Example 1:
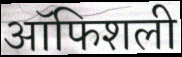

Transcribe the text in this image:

ऑफिशली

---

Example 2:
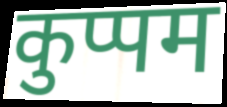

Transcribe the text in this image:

कुप्पम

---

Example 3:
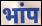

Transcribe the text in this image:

भांप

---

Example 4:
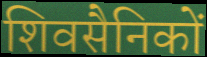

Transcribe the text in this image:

शिवसैनिकों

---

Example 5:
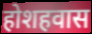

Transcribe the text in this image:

होशहवास